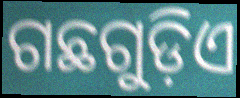
ଗଛଗୁଡ଼ିଏ